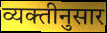
व्यक्तीनुसार